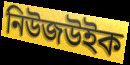
নিউজউইক